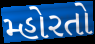
મ્હોરતો